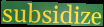
subsidize